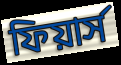
ফিয়ার্স